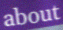
about